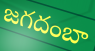
జగదంబా